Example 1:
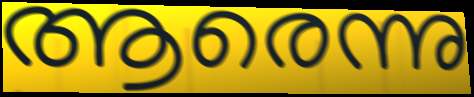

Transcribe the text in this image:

ആരെന്നു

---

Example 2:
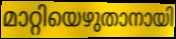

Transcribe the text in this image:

മാറ്റിയെഴുതാനായി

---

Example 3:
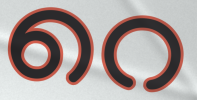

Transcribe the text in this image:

റെ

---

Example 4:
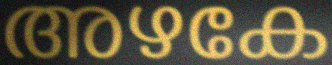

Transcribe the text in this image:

അഴകേ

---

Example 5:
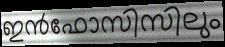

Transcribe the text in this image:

ഇൻഫോസിസിലും